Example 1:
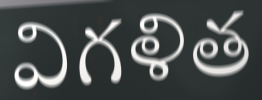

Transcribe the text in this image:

విగళిత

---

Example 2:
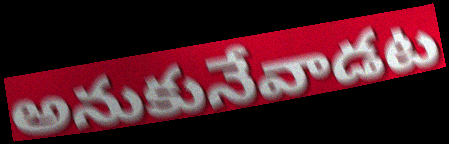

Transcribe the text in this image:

అనుకునేవాడట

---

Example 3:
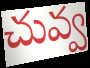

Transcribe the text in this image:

చువ్వ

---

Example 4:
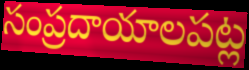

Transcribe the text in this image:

సంప్రదాయాలపట్ల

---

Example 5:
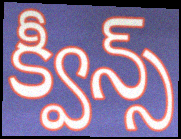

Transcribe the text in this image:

క్వీన్స్